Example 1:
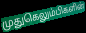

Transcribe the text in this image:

முதுகெலும்பிகளின்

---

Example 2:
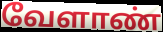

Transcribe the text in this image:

வேளாண்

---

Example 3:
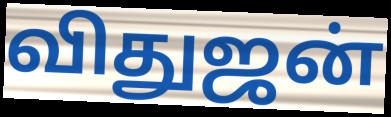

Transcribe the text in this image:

விதுஜன்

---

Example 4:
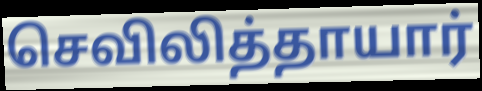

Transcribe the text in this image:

செவிலித்தாயார்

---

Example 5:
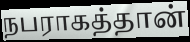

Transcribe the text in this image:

நபராகத்தான்